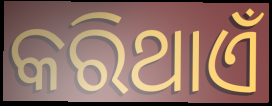
କରିଥାଏଁ